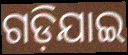
ଗଡ଼ିଯାଇ